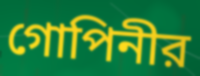
গোপিনীর